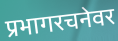
प्रभागरचनेवर